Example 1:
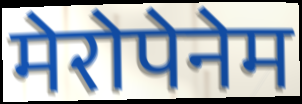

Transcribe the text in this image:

मेरोपेनेम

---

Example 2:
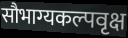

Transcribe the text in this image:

सौभाग्यकल्पवृक्ष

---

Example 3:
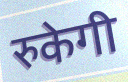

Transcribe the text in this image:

रुकेगी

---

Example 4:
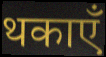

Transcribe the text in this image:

थकाएँ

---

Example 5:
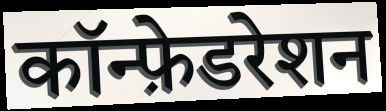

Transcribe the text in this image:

कॉन्फ़ेडरेशन